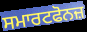
ਸਮਾਰਟਫੋਨਜ਼